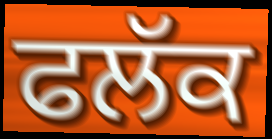
ਫਲੱਕ